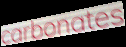
carbonates